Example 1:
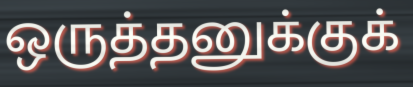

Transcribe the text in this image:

ஒருத்தனுக்குக்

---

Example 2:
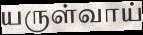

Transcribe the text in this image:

யருள்வாய்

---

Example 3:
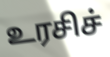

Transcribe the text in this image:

உரசிச்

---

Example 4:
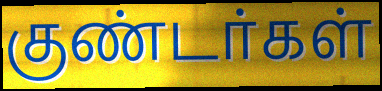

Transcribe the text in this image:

குண்டர்கள்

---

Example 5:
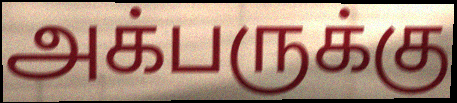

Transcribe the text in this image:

அக்பருக்கு